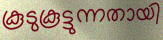
കൂടുകൂട്ടുന്നതായി